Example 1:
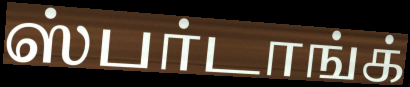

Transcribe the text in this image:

ஸ்பர்டாங்க்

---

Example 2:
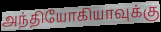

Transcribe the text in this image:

அந்தியோகியாவுக்கு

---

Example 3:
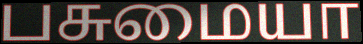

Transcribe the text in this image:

பசுமையா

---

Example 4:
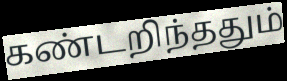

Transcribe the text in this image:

கண்டறிந்ததும்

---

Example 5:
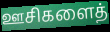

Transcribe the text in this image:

ஊசிகளைத்